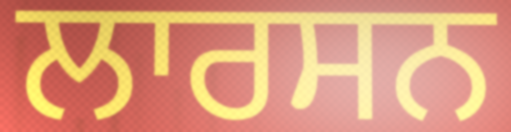
ਲਾਰਸਨ